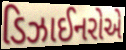
ડિઝાઈનરોએ